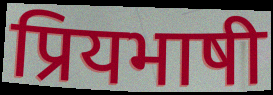
प्रियभाषी